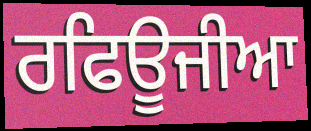
ਰਫਿਊਜੀਆ